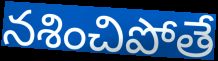
నశించిపోతే